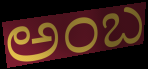
ಅಂಬ